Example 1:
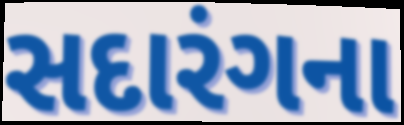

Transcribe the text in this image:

સદારંગના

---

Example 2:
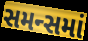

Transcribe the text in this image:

સમન્સમાં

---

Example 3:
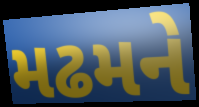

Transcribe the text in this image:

મઢમને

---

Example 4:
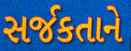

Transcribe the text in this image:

સર્જકતાને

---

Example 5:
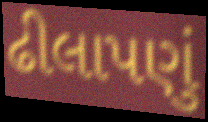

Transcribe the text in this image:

ઢીલાપણું